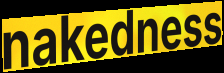
nakedness